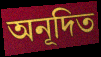
অনূদিত